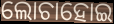
ଲୋଚାହୋଇ